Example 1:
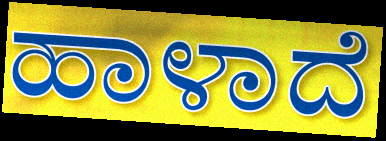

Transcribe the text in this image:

ಹಾಳಾದೆ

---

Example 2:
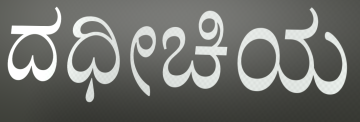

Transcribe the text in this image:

ದಧೀಚಿಯ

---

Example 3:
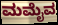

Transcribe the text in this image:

ಮಮೈವ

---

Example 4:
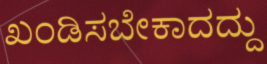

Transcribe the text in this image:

ಖಂಡಿಸಬೇಕಾದದ್ದು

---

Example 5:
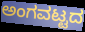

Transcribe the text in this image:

ಅಂಗವಟ್ಟದ